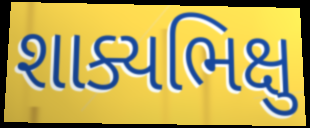
શાક્યભિક્ષુ